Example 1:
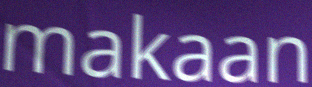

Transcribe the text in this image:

makaan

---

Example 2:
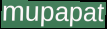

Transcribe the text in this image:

mupapat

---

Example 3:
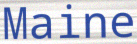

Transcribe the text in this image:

Maine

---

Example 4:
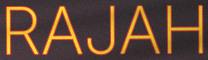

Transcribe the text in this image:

RAJAH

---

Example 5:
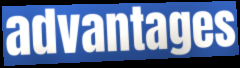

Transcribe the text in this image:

advantages